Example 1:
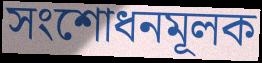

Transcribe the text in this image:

সংশোধনমূলক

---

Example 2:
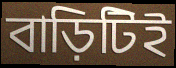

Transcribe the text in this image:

বাড়িটিই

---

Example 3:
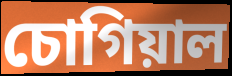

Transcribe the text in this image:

চোগিয়াল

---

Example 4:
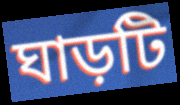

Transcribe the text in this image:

ঘাড়টি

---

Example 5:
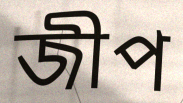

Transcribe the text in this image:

জীপ